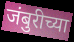
जंबुरीच्या